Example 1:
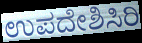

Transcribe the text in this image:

ಉಪದೇಶಿಸಿರಿ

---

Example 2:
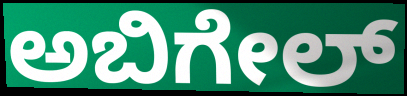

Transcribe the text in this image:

ಅಬಿಗೇಲ್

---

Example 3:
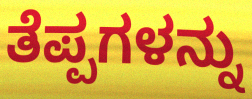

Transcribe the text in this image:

ತೆಪ್ಪಗಳನ್ನು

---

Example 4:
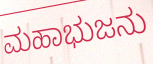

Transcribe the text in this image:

ಮಹಾಭುಜನು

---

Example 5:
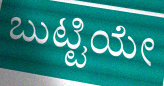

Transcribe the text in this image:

ಬುಟ್ಟಿಯೇ